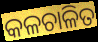
କଳଚାଳିତ